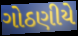
ગોઠણીયે